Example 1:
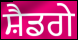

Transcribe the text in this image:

ਸ਼ੈਡਗੇ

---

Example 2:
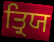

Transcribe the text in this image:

ਤ੍ਰਿਯ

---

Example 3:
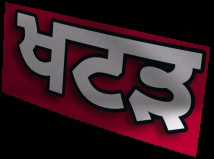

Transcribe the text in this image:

ਖਟੜ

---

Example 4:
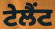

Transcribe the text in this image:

ਟੇਲੈਂਟ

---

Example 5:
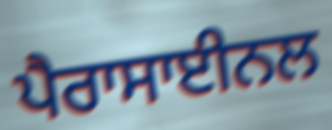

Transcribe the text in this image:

ਪੈਰਾਸਾਈਨਲ